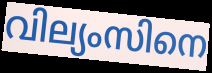
വില്യംസിനെ